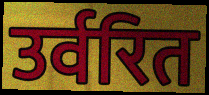
उर्वरित